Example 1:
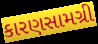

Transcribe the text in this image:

કારણસામગ્રી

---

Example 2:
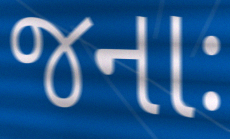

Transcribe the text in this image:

જનાઃ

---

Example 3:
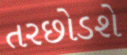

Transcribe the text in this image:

તરછોડશે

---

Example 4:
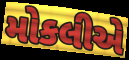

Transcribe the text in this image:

મોકલીએ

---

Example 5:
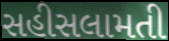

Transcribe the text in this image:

સહીસલામતી